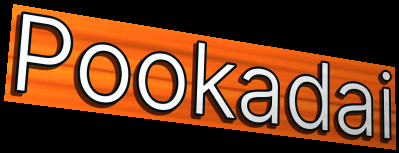
Pookadai